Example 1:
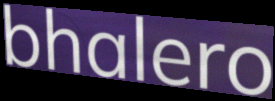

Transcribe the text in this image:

bhalero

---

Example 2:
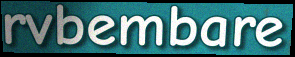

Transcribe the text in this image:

rvbembare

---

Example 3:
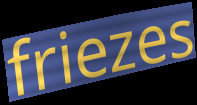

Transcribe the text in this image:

friezes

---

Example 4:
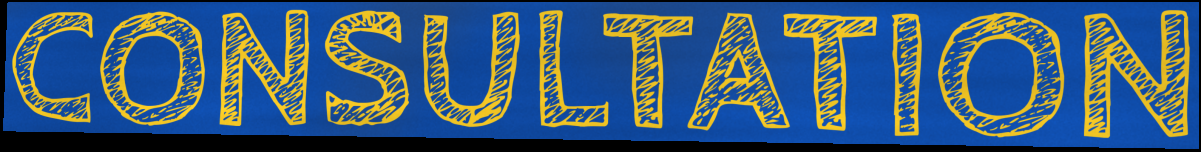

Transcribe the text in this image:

CONSULTATION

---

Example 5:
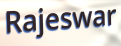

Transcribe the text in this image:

Rajeswar